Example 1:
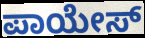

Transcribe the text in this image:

ಪಾಯೇಸ್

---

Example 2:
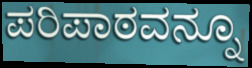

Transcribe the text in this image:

ಪರಿಪಾಠವನ್ನೂ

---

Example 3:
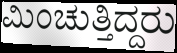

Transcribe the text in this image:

ಮಿಂಚುತ್ತಿದ್ದರು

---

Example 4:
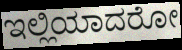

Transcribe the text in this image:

ಇಲ್ಲಿಯಾದರೋ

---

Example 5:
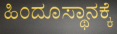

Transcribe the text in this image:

ಹಿಂದೂಸ್ಥಾನಕ್ಕೆ